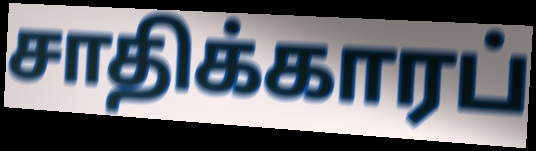
சாதிக்காரப்